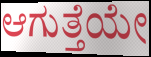
ಆಗುತ್ತೆಯೇ